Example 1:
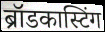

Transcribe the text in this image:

ब्रॉडकास्टिंग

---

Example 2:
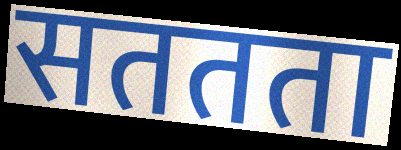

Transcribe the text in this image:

सततता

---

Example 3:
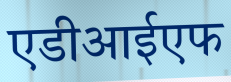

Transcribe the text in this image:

एडीआईएफ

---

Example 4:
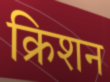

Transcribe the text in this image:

क्रिशन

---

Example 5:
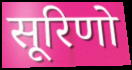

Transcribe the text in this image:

सूरिणो